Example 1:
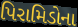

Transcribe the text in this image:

પિરામિડોના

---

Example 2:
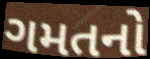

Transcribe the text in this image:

ગમતનો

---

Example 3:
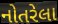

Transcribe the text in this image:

નોતરેલા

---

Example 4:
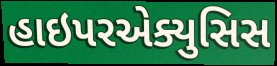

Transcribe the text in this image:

હાઇપરએક્યુસિસ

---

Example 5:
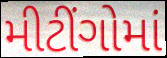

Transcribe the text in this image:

મીટીંગોમાં